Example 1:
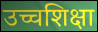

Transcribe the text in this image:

उच्चशिक्षा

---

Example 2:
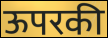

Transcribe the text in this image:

ऊपरकी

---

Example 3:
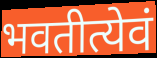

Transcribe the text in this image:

भवतीत्येवं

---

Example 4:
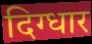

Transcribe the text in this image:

दिग्धार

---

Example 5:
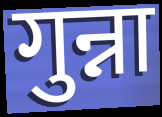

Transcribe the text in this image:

गुन्ना